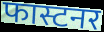
फास्टनर